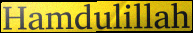
Hamdulillah